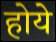
होये